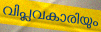
വിപ്ലവകാരിയും